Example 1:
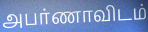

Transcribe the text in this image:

அபர்ணாவிடம்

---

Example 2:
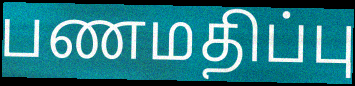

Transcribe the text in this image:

பணமதிப்பு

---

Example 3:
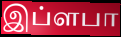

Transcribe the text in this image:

இப்ளபா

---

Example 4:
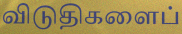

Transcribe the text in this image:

விடுதிகளைப்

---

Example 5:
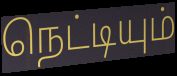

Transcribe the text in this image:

நெட்டியும்